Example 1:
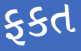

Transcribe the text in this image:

ફકત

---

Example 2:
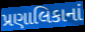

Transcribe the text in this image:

પ્રણાલિકાનાં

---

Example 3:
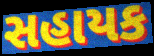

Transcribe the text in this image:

સહાયક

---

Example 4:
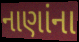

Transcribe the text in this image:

નાણાંના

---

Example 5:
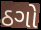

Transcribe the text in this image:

ઠગો